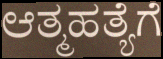
ಆತ್ಮಹತ್ಯೆಗೆ